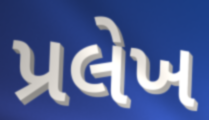
પ્રલેખ